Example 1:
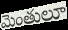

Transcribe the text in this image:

మెంతులూ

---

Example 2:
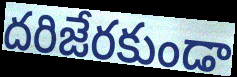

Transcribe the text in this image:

దరిజేరకుండా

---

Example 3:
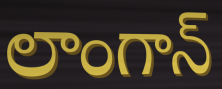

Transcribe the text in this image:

లాంగాన్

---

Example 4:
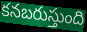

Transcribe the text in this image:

కనబరుస్తుంది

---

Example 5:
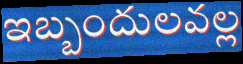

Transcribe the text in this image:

ఇబ్బందులవల్ల